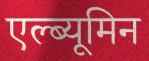
एल्ब्यूमिन